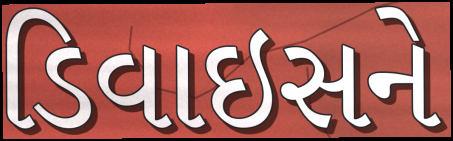
ડિવાઇસને